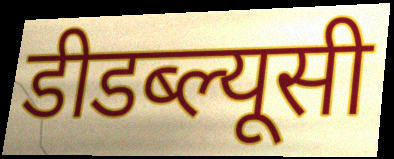
डीडब्ल्यूसी